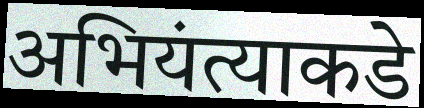
अभियंत्याकडे